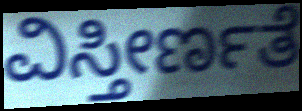
ವಿಸ್ತೀರ್ಣತೆ